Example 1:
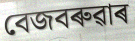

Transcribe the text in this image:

বেজবৰুৱাৰ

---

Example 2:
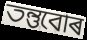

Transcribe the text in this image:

তন্তুবোৰ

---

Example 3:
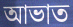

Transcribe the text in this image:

আভাত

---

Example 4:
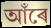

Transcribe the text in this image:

আঁৰে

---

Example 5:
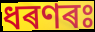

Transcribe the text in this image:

ধৰণৰঃ